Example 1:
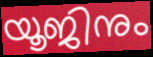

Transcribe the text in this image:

യൂജിനും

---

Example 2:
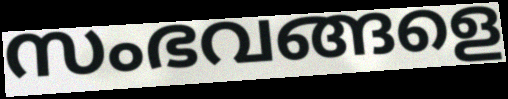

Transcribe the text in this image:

സംഭവങ്ങളെ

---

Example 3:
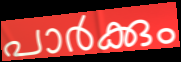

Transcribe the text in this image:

പാർക്കും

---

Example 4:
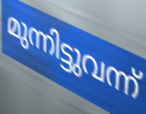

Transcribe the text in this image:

മുന്നിട്ടുവന്ന്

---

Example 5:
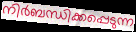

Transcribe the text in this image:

നിർബന്ധിക്കപ്പെടുന്ന